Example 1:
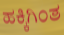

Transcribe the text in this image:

ಹಕ್ಕಿಗಿಂತ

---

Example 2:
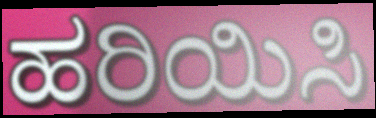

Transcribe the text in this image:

ಹರಿಯಿಸಿ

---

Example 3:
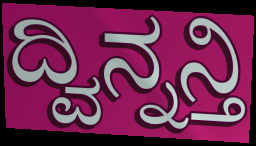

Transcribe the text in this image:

ದ್ವಿನ್ನನ್ತಿ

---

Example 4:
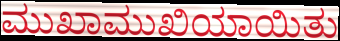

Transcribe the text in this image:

ಮುಖಾಮುಖಿಯಾಯಿತು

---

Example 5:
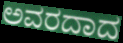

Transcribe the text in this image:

ಅವರದಾದ